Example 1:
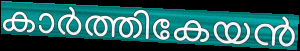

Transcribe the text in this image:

കാർത്തികേയൻ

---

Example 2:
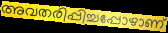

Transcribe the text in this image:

അവതരിപ്പിച്ചപ്പോഴാണ്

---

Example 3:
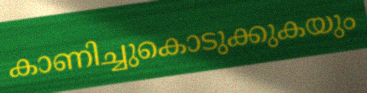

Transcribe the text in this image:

കാണിച്ചുകൊടുക്കുകയും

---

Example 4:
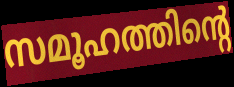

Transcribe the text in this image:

സമൂഹത്തിന്റെ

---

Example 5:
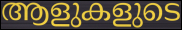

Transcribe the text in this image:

ആളുകളുടെ